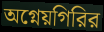
অগ্নেয়গিরির